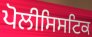
ਪੋਲੀਸਿਸਟਿਕ